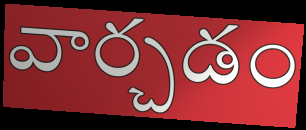
వార్చడం